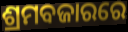
ଶ୍ରମବଜାରରେ